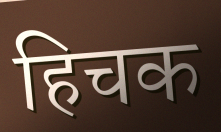
हिचक